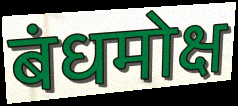
बंधमोक्ष